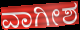
ವಾಗೀಶ